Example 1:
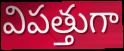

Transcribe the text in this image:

విపత్తుగా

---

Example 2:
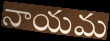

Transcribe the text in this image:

నాయమ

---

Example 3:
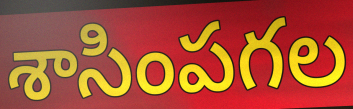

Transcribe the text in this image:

శాసింపగల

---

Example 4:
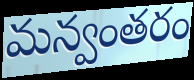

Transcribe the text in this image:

మన్వంతరం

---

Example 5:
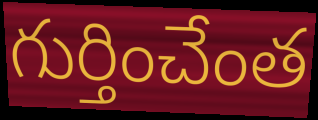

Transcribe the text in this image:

గుర్తించేంత